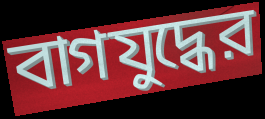
বাগযুদ্ধের